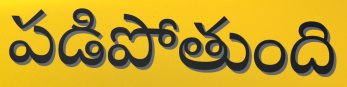
పడిపోతుంది